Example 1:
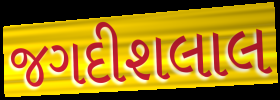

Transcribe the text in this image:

જગદીશલાલ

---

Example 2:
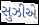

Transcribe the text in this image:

સુઝીએ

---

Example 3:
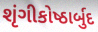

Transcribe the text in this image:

શૃંગીકોષ્ઠાર્બુદ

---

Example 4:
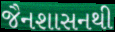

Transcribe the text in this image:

જૈનશાસનથી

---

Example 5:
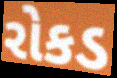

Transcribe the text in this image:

રોકડ